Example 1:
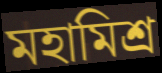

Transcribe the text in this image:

মহামিশ্র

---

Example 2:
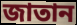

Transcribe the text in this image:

জাতান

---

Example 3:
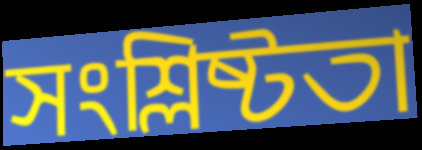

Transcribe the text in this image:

সংশ্লিষ্টতা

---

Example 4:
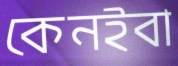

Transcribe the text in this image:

কেনইবা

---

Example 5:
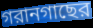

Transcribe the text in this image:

গরানগাছের